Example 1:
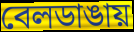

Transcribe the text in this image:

বেলডাঙায়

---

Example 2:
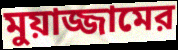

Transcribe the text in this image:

মুয়াজ্জামের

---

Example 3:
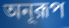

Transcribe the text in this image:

অনূরূপ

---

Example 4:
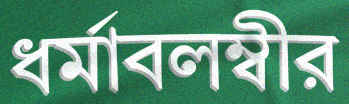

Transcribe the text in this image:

ধর্মাবলম্বীর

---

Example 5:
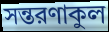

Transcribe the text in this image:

সন্তরণাকুল